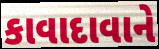
કાવાદાવાને